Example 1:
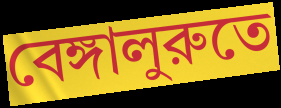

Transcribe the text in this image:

বেঙ্গালুরুতে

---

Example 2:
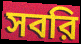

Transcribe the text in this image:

সবরি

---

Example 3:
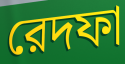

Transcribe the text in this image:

রেদফা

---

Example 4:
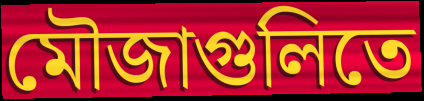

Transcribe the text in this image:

মৌজাগুলিতে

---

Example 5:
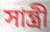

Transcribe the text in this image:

সান্ত্রী